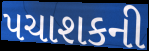
પચાશકની